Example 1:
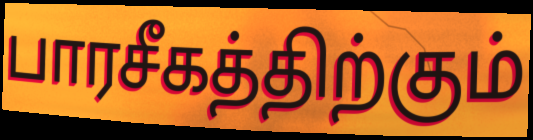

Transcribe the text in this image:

பாரசீகத்திற்கும்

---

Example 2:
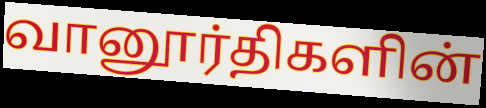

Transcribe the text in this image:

வானூர்திகளின்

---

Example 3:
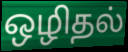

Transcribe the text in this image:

ஒழிதல்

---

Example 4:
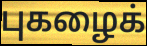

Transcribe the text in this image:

புகழைக்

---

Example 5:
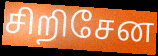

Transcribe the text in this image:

சிறிசேன